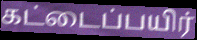
கட்டைப்பயிர்